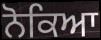
ਨੋਕਿਆ